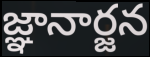
జ్ఞానార్జన